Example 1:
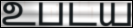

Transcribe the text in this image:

உபடய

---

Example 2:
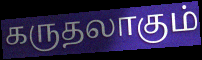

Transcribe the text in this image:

கருதலாகும்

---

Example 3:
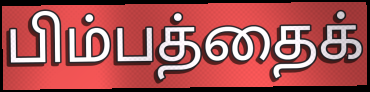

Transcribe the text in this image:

பிம்பத்தைக்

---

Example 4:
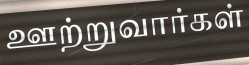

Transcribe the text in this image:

ஊற்றுவார்கள்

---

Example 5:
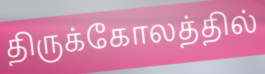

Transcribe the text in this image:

திருக்கோலத்தில்